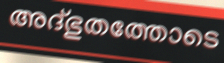
അദ്ഭുതത്തോടെ